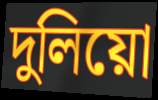
দুলিয়ো